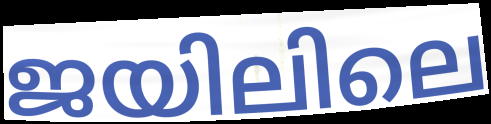
ജയിലിലെ